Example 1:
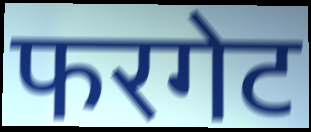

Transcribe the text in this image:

फरगेट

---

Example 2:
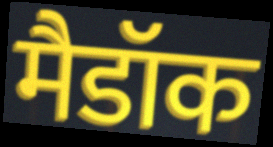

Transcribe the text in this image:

मैडॉक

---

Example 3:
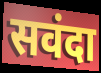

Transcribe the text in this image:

सवंदा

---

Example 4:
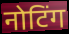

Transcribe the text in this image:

नोटिंग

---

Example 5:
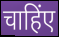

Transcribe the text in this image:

चाहिंए